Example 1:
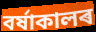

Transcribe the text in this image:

বৰ্ষাকালৰ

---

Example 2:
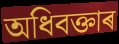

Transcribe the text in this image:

অধিবক্তাৰ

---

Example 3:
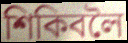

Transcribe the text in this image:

শিকিবলৈ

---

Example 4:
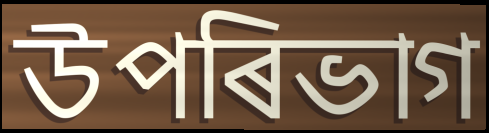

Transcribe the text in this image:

উপৰিভাগ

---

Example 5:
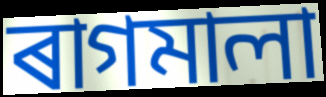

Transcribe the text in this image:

ৰাগমালা